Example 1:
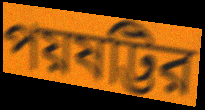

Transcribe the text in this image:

পয়ষট্টির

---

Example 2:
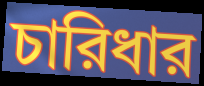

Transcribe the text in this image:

চারিধার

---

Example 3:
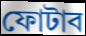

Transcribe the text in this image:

ফোটাব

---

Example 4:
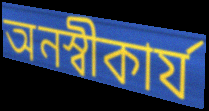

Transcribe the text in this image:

অনস্বীকার্য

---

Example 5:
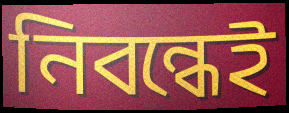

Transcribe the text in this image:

নিবন্ধেই